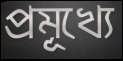
প্ৰমূখ্যে